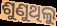
ଶୁଣୁଥିଲୁ